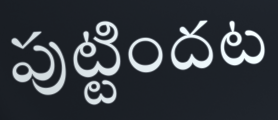
పుట్టిందట